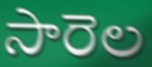
సారెల